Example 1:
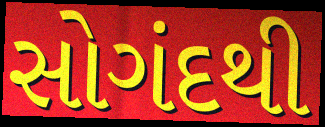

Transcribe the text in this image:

સોગંદથી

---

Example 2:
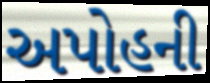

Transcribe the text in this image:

અપોહની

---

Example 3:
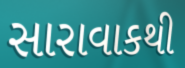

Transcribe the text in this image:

સારાવાકથી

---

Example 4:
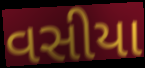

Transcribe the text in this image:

વસીયા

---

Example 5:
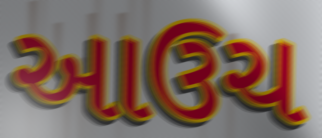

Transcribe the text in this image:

આઉચ